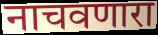
नाचवणारा